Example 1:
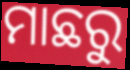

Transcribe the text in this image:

ମାଛରୁ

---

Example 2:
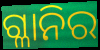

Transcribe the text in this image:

ଗ୍ଳାନିର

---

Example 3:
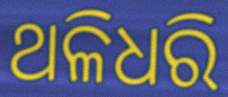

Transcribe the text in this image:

ଥଳିଧରି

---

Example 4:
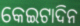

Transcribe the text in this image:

କେଇଟାଦିନ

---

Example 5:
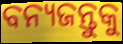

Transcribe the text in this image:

ବନ୍ୟଜନ୍ତୁକୁ